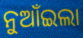
ନୁଆଁଇଲା